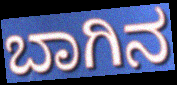
ಬಾಗಿನ